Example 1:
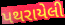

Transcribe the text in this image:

પથરાયેલી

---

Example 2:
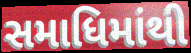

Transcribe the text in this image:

સમાધિમાંથી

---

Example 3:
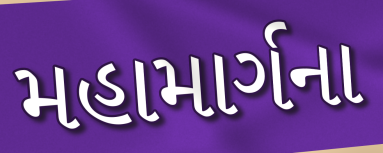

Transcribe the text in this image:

મહામાર્ગના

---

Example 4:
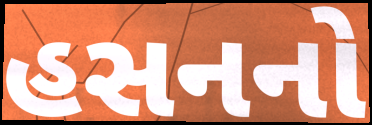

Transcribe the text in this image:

હસનનો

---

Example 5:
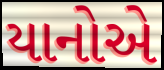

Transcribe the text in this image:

યાનોએ